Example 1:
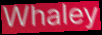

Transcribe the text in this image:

Whaley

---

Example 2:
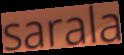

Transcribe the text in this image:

sarala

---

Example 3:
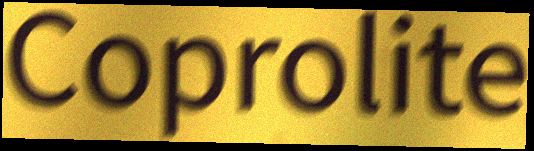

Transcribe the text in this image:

Coprolite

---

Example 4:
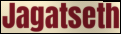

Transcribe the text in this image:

Jagatseth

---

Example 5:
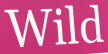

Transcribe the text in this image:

Wild